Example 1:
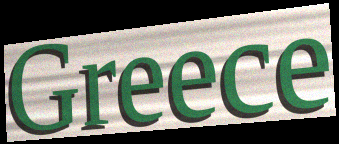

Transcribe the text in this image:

Greece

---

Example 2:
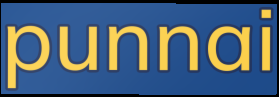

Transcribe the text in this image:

punnai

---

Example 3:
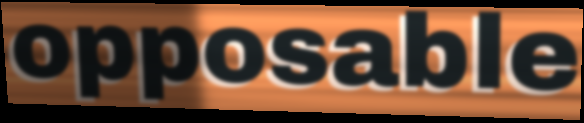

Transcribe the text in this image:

opposable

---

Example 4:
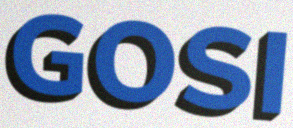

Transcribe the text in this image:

GOSI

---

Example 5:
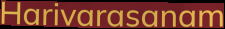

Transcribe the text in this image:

Harivarasanam